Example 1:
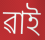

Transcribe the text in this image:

ৱাই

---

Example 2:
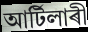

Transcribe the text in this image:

আৰ্টিলাৰী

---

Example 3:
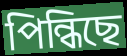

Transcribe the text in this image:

পিন্ধিছে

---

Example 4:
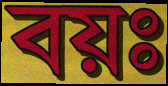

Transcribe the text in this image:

বয়ঃ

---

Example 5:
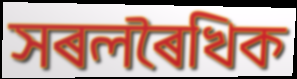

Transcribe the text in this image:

সৰলৰৈখিক